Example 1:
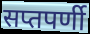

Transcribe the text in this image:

सप्तपर्णी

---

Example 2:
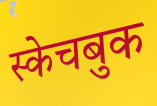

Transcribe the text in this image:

स्केचबुक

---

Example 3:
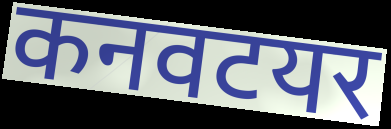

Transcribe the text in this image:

कनवटयर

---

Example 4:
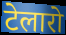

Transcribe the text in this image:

टेलारो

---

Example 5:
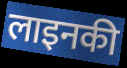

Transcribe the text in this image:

लाइनकी